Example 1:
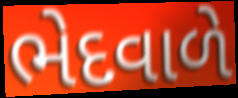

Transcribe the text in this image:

ભેદવાળે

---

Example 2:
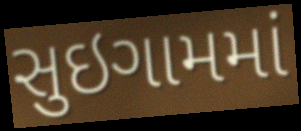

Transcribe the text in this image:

સુઇગામમાં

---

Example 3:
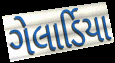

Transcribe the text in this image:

ગેલાર્ડિયા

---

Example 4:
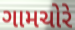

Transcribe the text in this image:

ગામચોરે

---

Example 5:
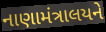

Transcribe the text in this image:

નાણામંત્રાલયને